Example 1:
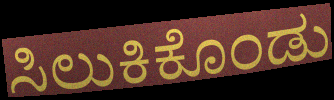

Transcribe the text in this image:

ಸಿಲುಕಿಕೊಂಡು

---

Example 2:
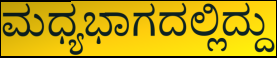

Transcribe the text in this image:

ಮಧ್ಯಭಾಗದಲ್ಲಿದ್ದು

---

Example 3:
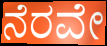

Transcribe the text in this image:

ನೆರವೇ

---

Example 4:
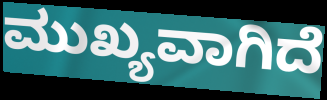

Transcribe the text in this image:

ಮುಖ್ಯವಾಗಿದೆ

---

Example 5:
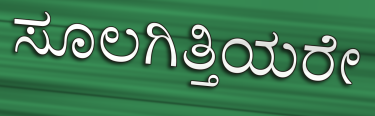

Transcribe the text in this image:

ಸೂಲಗಿತ್ತಿಯರೇ